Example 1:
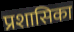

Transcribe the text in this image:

प्रशासिका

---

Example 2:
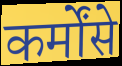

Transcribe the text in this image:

कर्मोंसे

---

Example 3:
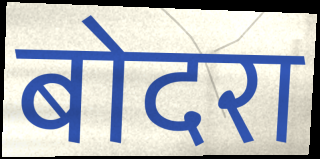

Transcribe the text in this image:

बोदरा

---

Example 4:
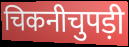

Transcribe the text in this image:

चिकनीचुपड़ी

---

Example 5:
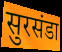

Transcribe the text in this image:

सुरसंडा